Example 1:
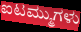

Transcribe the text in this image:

ಐಟಮ್ಮುಗಳು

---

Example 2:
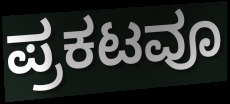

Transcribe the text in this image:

ಪ್ರಕಟವೂ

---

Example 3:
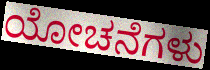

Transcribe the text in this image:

ಯೋಚನೆಗಳು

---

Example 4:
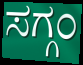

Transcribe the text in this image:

ಸಗ್ಗಂ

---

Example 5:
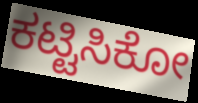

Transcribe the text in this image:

ಕಟ್ಟಿಸಿಕೋ